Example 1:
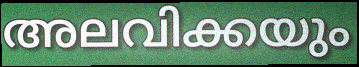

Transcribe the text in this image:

അലവിക്കയും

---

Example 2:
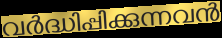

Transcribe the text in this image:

വർദ്ധിപ്പിക്കുന്നവൻ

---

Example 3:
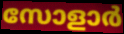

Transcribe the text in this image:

സോളാർ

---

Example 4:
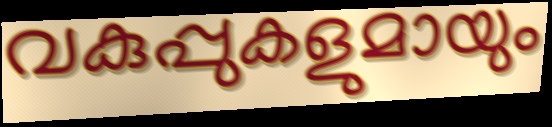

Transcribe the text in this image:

വകുപ്പുകളുമായും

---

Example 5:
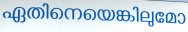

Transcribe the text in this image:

ഏതിനെയെങ്കിലുമോ